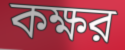
কক্ষর